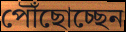
পৌঁছোচ্ছেন